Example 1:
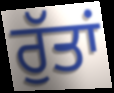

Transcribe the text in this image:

ਰੁੱਤਾਂ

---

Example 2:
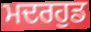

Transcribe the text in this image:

ਮਦਰਹੁਡ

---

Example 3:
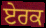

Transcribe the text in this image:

ਏਰਕ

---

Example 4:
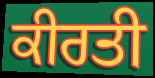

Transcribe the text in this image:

ਕੀਰਤੀ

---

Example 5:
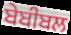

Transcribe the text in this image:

ਬੇਬੀਬਲ